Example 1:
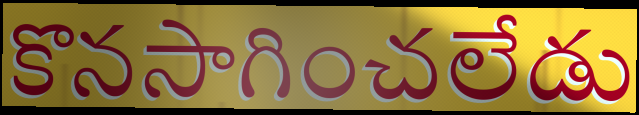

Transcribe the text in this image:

కొనసాగించలేడు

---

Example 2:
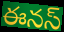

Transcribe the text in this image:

ఈనస్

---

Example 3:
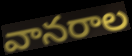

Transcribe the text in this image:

వానరాల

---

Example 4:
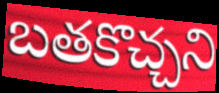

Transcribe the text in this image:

బతకొచ్చని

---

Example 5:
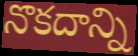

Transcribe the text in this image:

నొకదాన్ని